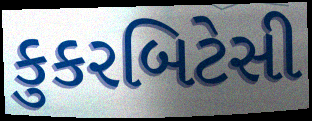
કુકરબિટેસી